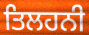
ਤਿਲਹਨੀ